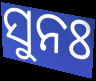
ସୁନଃ